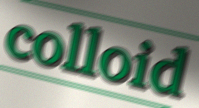
colloid